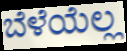
ಬೆಳೆಯೆಲ್ಲ